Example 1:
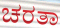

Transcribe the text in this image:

ಚರತಾ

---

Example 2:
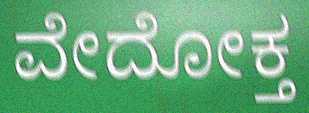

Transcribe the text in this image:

ವೇದೋಕ್ತ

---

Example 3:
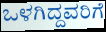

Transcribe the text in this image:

ಒಳಗಿದ್ದವರಿಗೆ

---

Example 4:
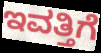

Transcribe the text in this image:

ಇವತ್ತಿಗೆ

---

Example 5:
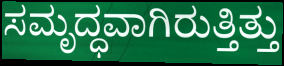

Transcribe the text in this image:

ಸಮೃದ್ಧವಾಗಿರುತ್ತಿತ್ತು